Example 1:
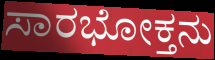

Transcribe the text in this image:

ಸಾರಭೋಕ್ತನು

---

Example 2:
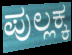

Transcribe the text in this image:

ಪುಲ್ಲಕ್ಕ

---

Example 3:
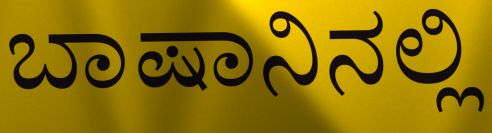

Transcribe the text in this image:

ಬಾಷಾನಿನಲ್ಲಿ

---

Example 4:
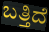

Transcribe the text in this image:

ಬತ್ತಿದೆ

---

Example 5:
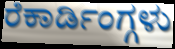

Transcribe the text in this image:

ರೆಕಾರ್ಡಿಂಗ್ಗಳು